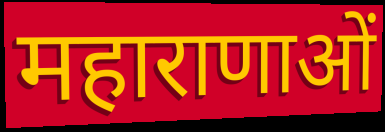
महाराणाओं